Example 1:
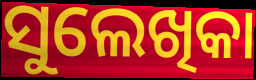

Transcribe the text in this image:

ସୁଲେଖିକା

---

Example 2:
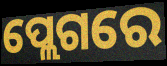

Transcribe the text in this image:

ପ୍ଲେଗରେ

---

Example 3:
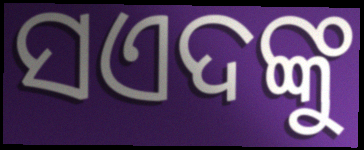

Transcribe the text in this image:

ସଏଦଙ୍କୁ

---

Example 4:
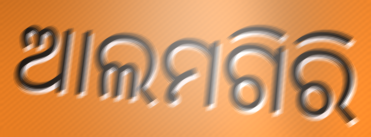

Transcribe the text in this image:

ଆଲମଗିରି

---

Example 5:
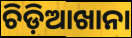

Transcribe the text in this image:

ଚିଡ଼ିଆଖାନା